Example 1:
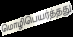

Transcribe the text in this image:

மொழிபெயர்த்தது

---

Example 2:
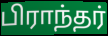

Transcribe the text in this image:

பிராந்தர்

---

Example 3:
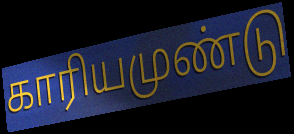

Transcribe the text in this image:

காரியமுண்டு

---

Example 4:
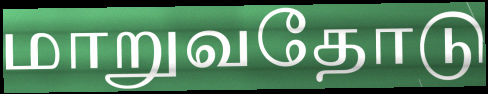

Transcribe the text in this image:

மாறுவதோடு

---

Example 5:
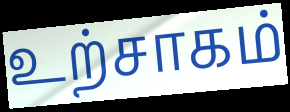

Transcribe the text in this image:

உற்சாகம்